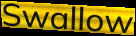
Swallow